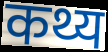
कथ्य